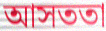
আসততা